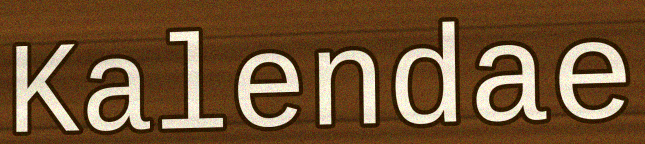
Kalendae